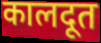
कालदूत